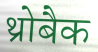
थ्रोबैक